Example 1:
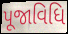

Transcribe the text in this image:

પૂજાવિધિ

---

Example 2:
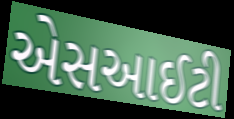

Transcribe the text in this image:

એસઆઈટી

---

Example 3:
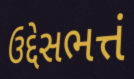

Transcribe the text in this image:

ઉદ્દેસભત્તં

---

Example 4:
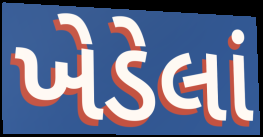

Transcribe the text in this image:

ખેડેલાં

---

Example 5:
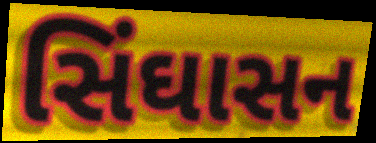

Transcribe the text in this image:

સિંઘાસન